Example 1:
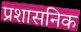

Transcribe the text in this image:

प्रशासनिक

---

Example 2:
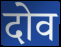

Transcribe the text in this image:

दोव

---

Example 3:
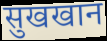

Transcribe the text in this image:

सुखखान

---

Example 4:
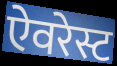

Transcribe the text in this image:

ऐवरेस्ट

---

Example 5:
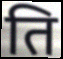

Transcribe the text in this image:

ति